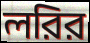
লরির